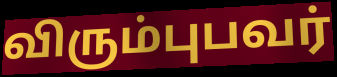
விரும்புபவர்